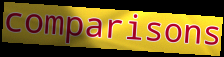
comparisons